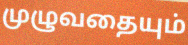
முழுவதையும்